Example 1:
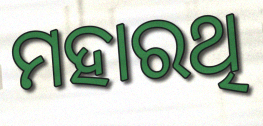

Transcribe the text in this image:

ମହାରଥି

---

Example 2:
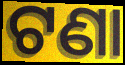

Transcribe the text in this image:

ଟଣା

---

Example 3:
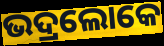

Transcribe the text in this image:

ଭଦ୍ରଲୋକେ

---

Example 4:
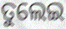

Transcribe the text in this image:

ତୁଲେଇ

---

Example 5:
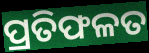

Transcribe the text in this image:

ପ୍ରତିଫଳତ